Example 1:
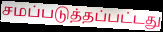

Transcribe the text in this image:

சமப்படுத்தப்பட்டது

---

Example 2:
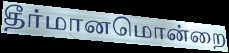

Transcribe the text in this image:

தீர்மானமொன்றை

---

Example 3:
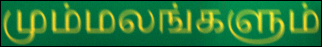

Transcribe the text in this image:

மும்மலங்களும்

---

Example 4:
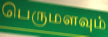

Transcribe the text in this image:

பெருமளவும்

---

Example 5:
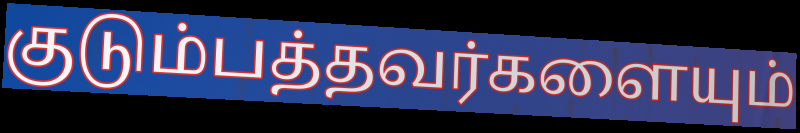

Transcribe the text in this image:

குடும்பத்தவர்களையும்